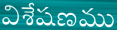
విశేషణము